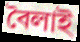
বৈলাই